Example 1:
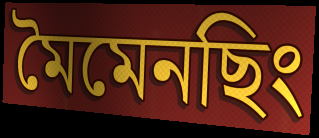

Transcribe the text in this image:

মৈমেনছিং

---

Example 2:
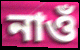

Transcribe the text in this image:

নাওঁ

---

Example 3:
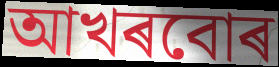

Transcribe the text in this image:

আখৰবোৰ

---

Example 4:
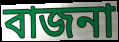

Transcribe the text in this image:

বাজনা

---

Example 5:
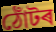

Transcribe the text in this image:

ঠোঁটৰ